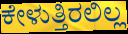
ಕೇಳುತ್ತಿರಲಿಲ್ಲ